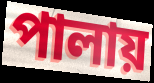
পালায়